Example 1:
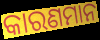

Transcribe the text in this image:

କାରଣମାନ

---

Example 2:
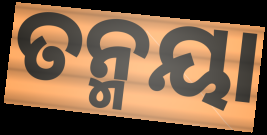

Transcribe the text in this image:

ତନ୍ମୟା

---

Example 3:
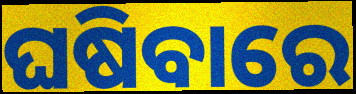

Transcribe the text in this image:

ଘଷିବାରେ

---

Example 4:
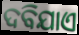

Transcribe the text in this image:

ଦବିଯାଏ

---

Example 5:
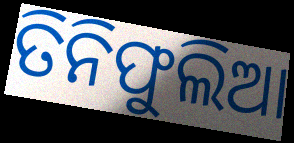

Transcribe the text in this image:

ତିନିଫୁଲିଆ